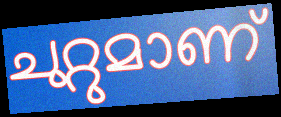
ചുറ്റുമാണ്